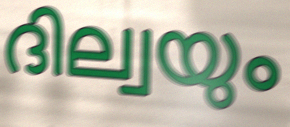
ദില്വയും